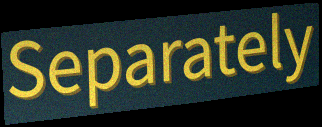
Separately